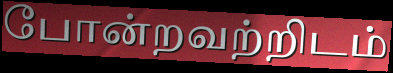
போன்றவற்றிடம்